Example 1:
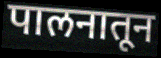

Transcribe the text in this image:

पालनातून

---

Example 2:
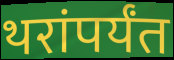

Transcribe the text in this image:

थरांपर्यंत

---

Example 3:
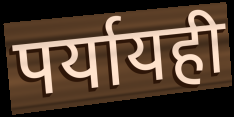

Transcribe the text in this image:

पर्यायही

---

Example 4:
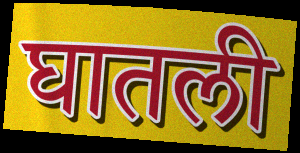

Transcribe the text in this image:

घातली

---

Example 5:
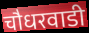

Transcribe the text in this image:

चौधरवाडी